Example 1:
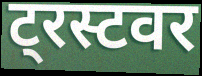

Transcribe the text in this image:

ट्रस्टवर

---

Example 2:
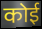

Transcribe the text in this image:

कोई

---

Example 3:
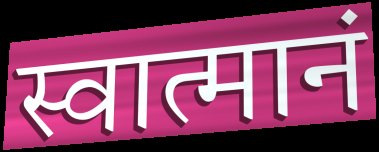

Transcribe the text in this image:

स्वात्मानं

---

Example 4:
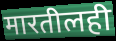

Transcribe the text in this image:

मारतीलही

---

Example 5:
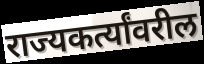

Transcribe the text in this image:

राज्यकर्त्यांवरील